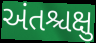
અંતશ્ચક્ષુ